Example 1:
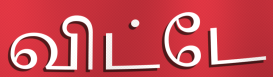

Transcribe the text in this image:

விட்டே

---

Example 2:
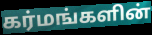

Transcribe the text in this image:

கர்மங்களின்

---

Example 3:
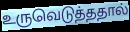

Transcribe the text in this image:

உருவெடுத்ததால்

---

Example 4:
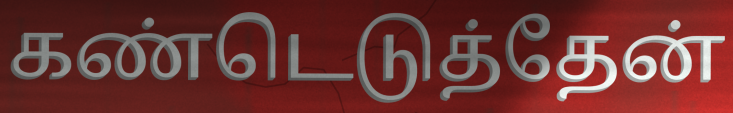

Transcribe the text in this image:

கண்டெடுத்தேன்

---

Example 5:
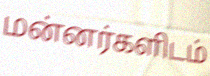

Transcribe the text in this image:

மன்னர்களிடம்